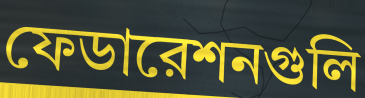
ফেডারেশনগুলি